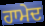
ਹਾਮੇਦ